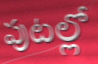
పుటల్లో